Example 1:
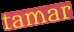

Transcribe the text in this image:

tamar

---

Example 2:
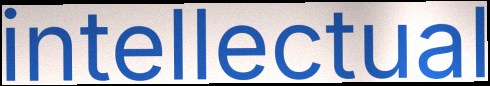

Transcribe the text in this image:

intellectual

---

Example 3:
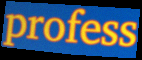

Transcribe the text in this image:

profess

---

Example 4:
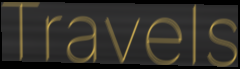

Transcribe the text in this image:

Travels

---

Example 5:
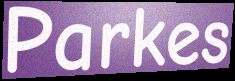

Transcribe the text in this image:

Parkes